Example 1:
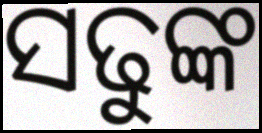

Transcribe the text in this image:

ସଢୁଙ୍କ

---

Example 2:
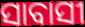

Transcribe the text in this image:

ସାବାସୀ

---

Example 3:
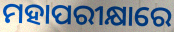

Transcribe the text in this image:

ମହାପରୀକ୍ଷାରେ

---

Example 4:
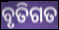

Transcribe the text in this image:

ବୃତିଗତ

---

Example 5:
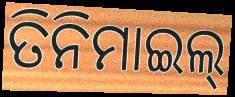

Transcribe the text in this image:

ତିନିମାଇଲ୍